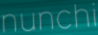
nunchi